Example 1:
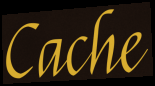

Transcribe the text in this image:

Cache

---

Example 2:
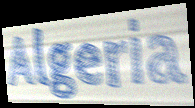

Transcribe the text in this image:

Algeria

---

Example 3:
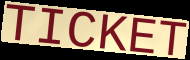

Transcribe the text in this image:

TICKET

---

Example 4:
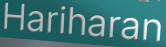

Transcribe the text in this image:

Hariharan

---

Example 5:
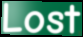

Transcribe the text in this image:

Lost